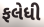
ફલેધી